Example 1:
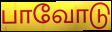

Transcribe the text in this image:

பாவோடு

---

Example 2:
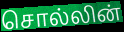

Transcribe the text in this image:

சொல்லின்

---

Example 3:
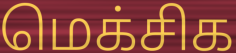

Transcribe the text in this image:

மெக்சிக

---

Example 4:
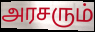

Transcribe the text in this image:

அரசரும்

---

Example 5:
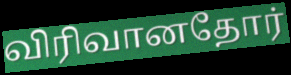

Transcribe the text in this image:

விரிவானதோர்